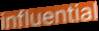
influential